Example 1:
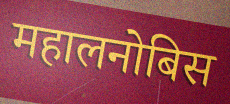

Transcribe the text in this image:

महालनोबिस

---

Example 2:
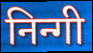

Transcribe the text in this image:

निन्गी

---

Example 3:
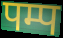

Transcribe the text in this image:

पम्प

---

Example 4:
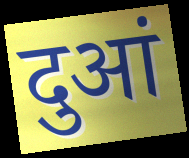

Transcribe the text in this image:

दुआं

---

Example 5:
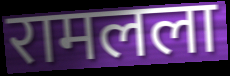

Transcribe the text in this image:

रामलला